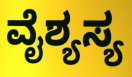
ವೈಶ್ಯಸ್ಯ